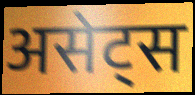
असेट्स